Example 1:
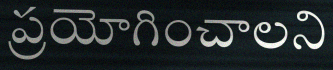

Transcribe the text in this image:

ప్రయోగించాలని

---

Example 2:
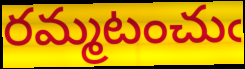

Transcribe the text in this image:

రమ్మటంచుఁ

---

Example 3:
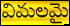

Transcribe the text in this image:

విమలమై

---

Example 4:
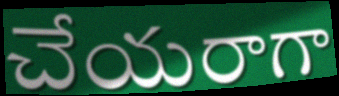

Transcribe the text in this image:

చేయరాగా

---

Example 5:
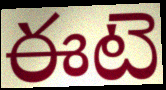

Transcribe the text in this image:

ఈటె